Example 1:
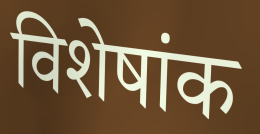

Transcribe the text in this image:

विशेषांक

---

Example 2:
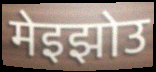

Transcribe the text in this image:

मेइझोउ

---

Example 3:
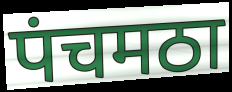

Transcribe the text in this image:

पंचमठा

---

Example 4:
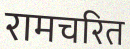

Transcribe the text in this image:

रामचरित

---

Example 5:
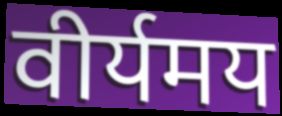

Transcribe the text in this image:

वीर्यमय